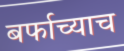
बर्फाच्याच